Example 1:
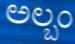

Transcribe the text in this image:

ಅಲ್ಬಂ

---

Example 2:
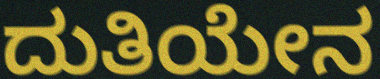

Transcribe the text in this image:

ದುತಿಯೇನ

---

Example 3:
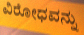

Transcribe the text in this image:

ವಿರೋಧವನ್ನು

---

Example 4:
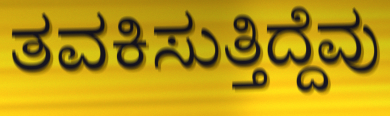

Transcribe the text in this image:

ತವಕಿಸುತ್ತಿದ್ದೆವು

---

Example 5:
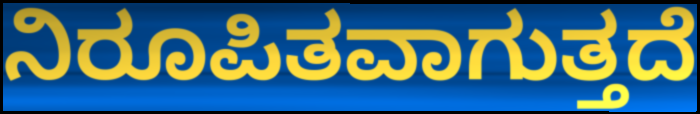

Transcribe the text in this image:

ನಿರೂಪಿತವಾಗುತ್ತದೆ